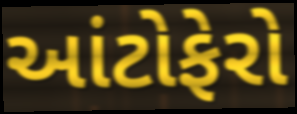
આંટોફેરો